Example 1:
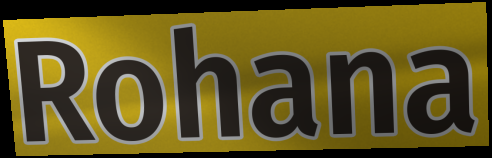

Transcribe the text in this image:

Rohana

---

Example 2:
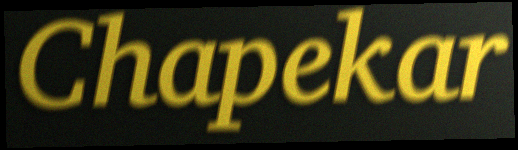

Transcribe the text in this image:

Chapekar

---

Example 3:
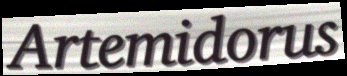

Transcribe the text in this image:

Artemidorus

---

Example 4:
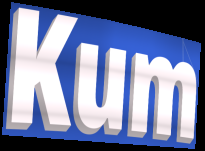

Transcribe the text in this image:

Kum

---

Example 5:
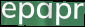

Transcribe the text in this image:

epapr